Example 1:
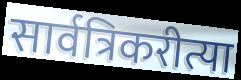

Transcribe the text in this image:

सार्वत्रिकरीत्या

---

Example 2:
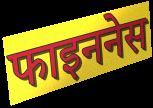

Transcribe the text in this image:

फाइननेस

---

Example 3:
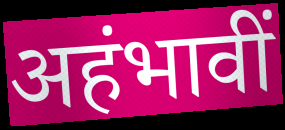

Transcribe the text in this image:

अहंभावीं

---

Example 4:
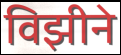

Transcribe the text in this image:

विझीने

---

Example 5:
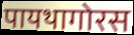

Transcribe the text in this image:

पायथागोरस